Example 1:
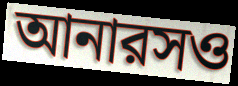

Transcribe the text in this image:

আনারসও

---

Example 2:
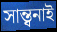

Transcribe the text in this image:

সান্ত্বনাই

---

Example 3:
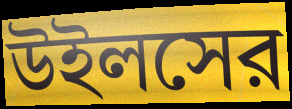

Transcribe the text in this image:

উইলসের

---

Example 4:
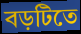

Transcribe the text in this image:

বড়টিতে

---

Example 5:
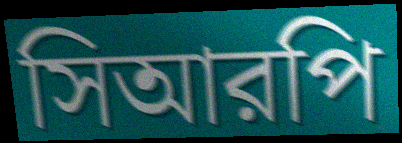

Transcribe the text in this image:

সিআরপি